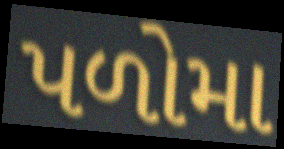
પળોમા